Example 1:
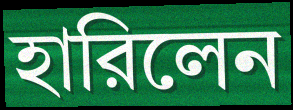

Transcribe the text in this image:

হারিলেন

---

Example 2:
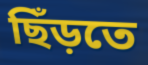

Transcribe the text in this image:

ছিঁড়তে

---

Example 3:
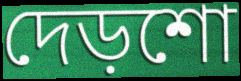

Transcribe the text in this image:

দেড়শো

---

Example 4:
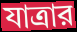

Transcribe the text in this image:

যাত্রার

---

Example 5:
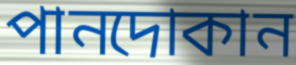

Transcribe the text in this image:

পানদোকান